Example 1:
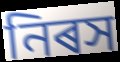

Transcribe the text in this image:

নিৰস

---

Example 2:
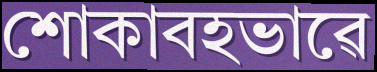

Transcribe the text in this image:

শোকাবহভাৱে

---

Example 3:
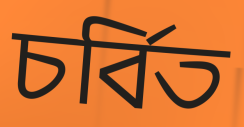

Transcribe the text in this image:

চৰ্বিত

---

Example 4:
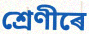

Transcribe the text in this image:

শ্ৰেণীৰে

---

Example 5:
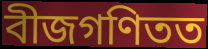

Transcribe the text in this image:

বীজগণিতত